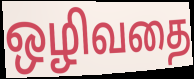
ஒழிவதை